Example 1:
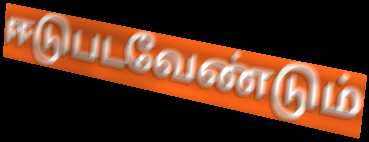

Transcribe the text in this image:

ஈடுபடவேண்டும்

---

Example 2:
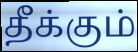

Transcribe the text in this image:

தீக்கும்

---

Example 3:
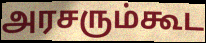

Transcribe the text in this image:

அரசரும்கூட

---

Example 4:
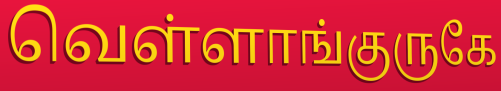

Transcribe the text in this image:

வெள்ளாங்குருகே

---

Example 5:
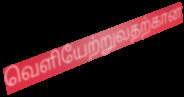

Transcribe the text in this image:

வெளியேற்றுவதற்கான